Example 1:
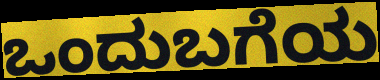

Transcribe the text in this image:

ಒಂದುಬಗೆಯ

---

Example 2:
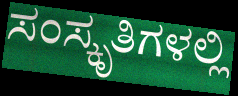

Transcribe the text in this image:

ಸಂಸ್ಕೃತಿಗಳಲ್ಲಿ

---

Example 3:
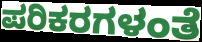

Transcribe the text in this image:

ಪರಿಕರಗಳಂತೆ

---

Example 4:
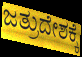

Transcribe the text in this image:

ಜತ್ರುದೇಶಕ್ಕೆ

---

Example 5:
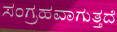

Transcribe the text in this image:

ಸಂಗ್ರಹವಾಗುತ್ತದೆ